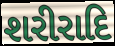
શરીરાદિ